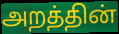
அறத்தின்